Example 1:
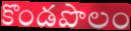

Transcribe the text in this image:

కొండపొలం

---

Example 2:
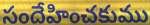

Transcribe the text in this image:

సందేహించకుము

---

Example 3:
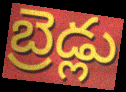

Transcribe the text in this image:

బ్రెడ్లు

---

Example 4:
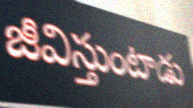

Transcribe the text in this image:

జీవిస్తుంటాడు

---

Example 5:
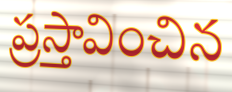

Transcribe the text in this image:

ప్రస్తావించిన